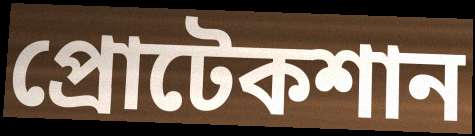
প্রোটেকশান